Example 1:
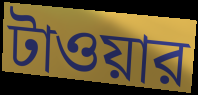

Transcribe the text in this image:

টাওয়ার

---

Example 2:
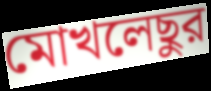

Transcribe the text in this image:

মোখলেছুর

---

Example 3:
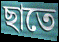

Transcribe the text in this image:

ছাতে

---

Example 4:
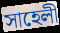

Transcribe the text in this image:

সাহেলী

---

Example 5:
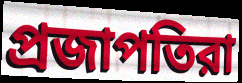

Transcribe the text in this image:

প্রজাপতিরা